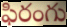
ఫిరంగు